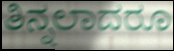
ತಿನ್ನಲಾದರೂ